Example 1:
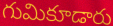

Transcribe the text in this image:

గుమికూడారు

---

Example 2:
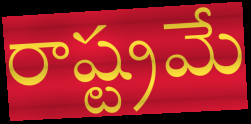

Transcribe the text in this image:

రాష్ట్రమే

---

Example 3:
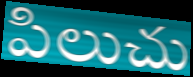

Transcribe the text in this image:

పిలుచు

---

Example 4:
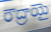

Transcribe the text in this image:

రౌద్రాయై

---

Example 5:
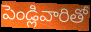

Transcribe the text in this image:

పెండ్లివారితో